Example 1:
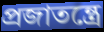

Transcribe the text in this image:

প্রজাতন্ত্রে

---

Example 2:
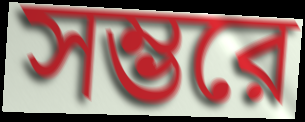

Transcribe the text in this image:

সম্ভরে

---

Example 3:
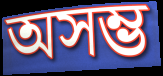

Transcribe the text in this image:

অসম্ভ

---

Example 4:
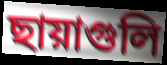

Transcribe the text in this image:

ছায়াগুলি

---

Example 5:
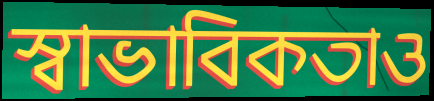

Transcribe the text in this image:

স্বাভাবিকতাও